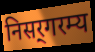
निसर्गरम्य